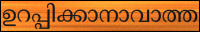
ഉറപ്പിക്കാനാവാത്ത